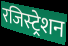
रजिस्‍ट्रेशन